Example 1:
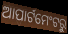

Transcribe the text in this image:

ଆପାର୍ଟମେଂଟରୁ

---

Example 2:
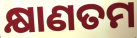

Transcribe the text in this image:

କ୍ଷାଣତମ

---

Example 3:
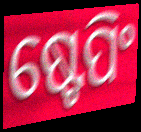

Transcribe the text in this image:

ଷ୍ଟେପିଂ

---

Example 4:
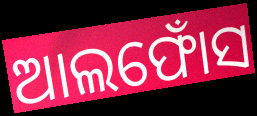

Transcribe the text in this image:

ଆଲଫୋଁସ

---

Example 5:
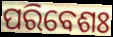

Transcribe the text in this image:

ପରିବେଶଃ